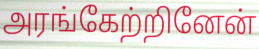
அரங்கேற்றினேன்